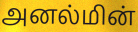
அனல்மின்